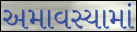
અમાવસ્યામાં